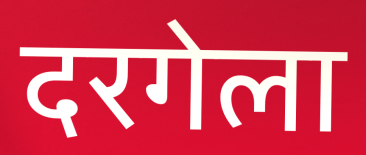
दरगेला